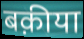
बक़ीया